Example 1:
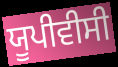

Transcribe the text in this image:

ਯੂਪੀਵੀਸੀ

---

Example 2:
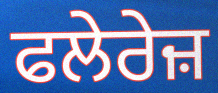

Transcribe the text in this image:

ਫਲੇਰੇਜ਼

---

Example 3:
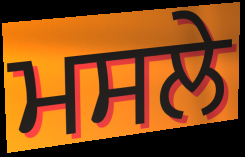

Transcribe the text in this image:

ਮਸਲੇ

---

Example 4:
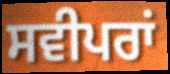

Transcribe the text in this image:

ਸਵੀਪਰਾਂ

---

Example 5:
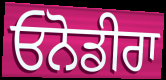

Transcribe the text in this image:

ਓਨੋਡੀਰਾ